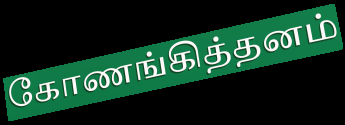
கோணங்கித்தனம்